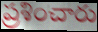
ప్రశించారు